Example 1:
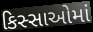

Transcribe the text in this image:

કિસ્સાઓમાં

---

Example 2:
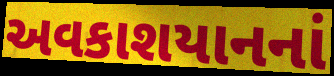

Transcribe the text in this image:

અવકાશયાનનાં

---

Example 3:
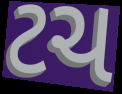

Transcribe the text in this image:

ટચ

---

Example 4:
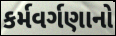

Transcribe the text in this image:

કર્મવર્ગણાનો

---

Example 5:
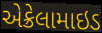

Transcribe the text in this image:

એક્રેલામાઇડ